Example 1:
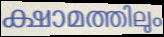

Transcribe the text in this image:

ക്ഷാമത്തിലും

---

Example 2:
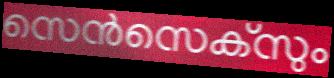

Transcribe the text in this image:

സെൻസെക്സും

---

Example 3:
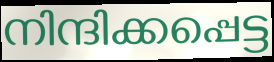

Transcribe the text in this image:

നിന്ദിക്കപ്പെട്ട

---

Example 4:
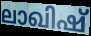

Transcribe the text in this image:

ലാഖിഷ്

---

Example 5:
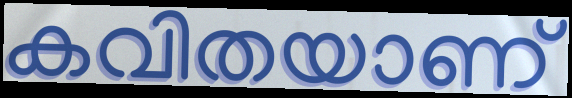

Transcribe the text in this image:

കവിതയാണ്